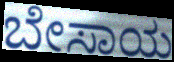
ಬೇಸಾಯ